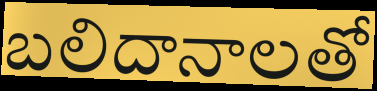
బలిదానాలతో